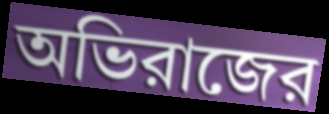
অভিরাজের